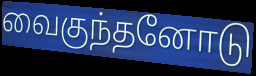
வைகுந்தனோடு